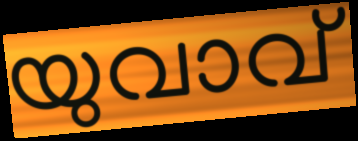
യുവാവ്